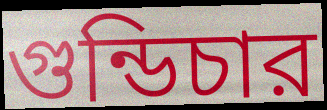
গুন্ডিচার